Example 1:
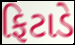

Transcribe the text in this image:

ફિટાડે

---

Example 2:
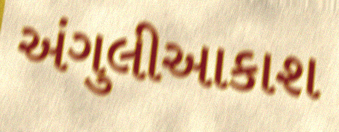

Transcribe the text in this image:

અંગુલીઆકાશ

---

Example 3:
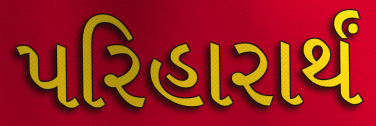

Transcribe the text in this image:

પરિહારાર્થં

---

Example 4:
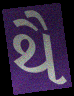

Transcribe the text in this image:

થૈ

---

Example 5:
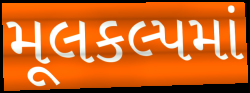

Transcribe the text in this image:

મૂલકલ્પમાં